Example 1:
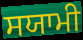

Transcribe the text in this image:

ਸਯਾਮੀ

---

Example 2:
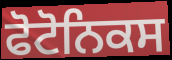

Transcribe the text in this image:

ਫੋਟੋਨਿਕਸ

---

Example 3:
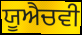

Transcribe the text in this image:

ਯੂਐਚਵੀ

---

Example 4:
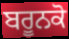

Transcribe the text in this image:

ਬਰੂਨਕੋ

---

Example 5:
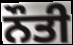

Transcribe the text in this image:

ਨੌਤੀ